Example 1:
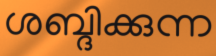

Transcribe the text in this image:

ശബ്ദിക്കുന്ന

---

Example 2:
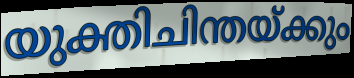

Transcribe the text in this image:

യുക്തിചിന്തയ്ക്കും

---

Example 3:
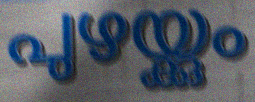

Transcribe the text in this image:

പുഴയ്ക്കും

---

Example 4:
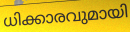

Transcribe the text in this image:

ധിക്കാരവുമായി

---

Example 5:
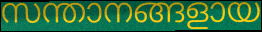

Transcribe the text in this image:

സന്താനങ്ങളായ